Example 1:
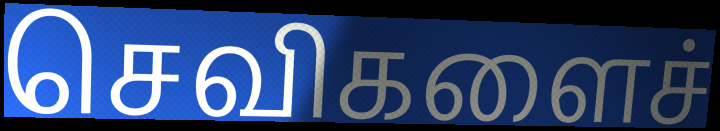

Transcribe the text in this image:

செவிகளைச்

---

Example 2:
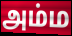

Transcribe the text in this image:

அம்ம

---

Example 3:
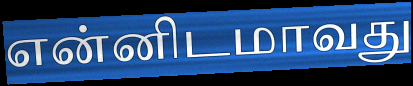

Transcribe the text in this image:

என்னிடமாவது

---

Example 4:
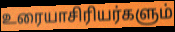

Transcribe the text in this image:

உரையாசிரியர்களும்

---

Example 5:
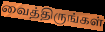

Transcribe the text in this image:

வைத்திருங்கள்